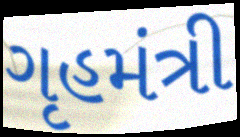
ગૃહમંત્રી